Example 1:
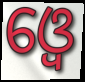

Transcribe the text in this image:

ଓ୍ବେ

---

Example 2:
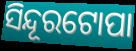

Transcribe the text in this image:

ସିନ୍ଦୂରଟୋପା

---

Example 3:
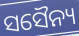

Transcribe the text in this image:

ସସୈନ୍ୟ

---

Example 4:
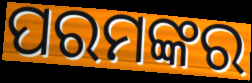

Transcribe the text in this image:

ପରମଙ୍କର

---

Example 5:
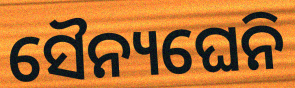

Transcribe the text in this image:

ସୈନ୍ୟଘେନି